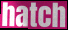
hatch